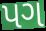
પગ